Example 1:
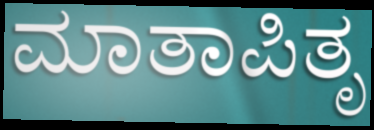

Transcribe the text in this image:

ಮಾತಾಪಿತೃ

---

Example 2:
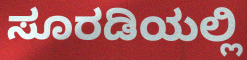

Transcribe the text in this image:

ಸೂರಡಿಯಲ್ಲಿ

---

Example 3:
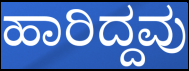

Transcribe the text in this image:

ಹಾರಿದ್ದವು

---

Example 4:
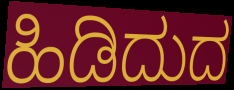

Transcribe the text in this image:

ಹಿಡಿದುದ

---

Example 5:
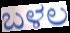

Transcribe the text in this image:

ಬಳಲ